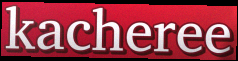
kacheree